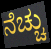
ನೆಚ್ಚು